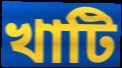
খাটি